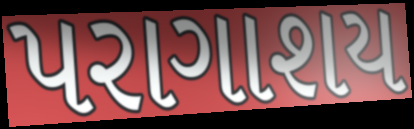
પરાગાશય